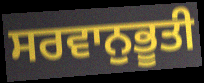
ਸਰਵਾਨੁਭੂਤੀ